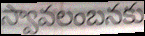
స్వావలంబనకు